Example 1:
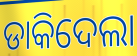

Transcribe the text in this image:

ଡାକିଦେଲା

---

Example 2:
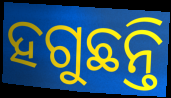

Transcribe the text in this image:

ହଗୁଛନ୍ତି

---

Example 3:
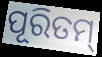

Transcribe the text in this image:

ପୂରିତମ୍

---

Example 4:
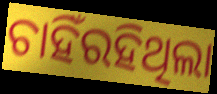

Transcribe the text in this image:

ଚାହିଁରହିଥିଲା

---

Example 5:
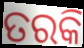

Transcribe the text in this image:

ତରକି